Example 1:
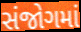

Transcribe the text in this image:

સંજોગમાં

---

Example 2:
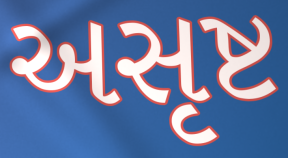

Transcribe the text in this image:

અસૃષ્ટ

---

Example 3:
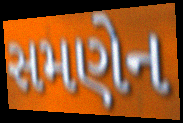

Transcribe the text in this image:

સમણેન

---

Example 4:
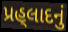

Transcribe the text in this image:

પ્રહ્‌લાદનું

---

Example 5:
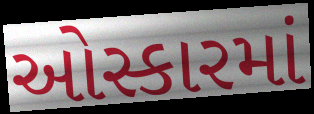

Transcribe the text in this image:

ઓસ્કારમાં